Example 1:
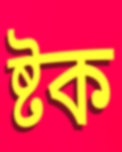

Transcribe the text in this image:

ষ্টক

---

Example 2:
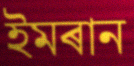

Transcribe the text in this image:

ইমৰান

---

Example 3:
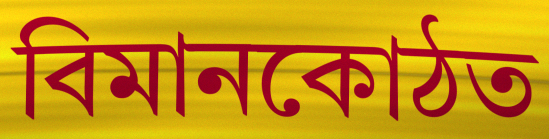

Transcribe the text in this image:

বিমানকোঠত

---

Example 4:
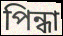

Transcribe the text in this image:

পিন্ধা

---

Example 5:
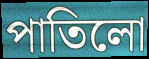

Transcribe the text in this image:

পাতিলো